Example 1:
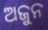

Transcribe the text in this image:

ଅଜୁନ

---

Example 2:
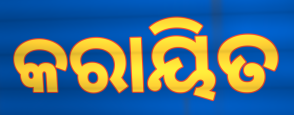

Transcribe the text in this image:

କରାୟିତ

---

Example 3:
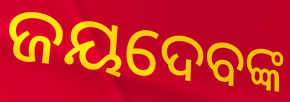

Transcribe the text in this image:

ଜୟଦେବଙ୍କ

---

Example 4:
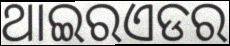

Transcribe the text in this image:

ଥାଇରଏଡର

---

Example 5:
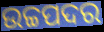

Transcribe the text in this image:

ଉଚ୍ଚପଦର